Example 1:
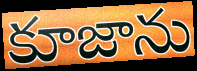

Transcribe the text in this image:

కూజాను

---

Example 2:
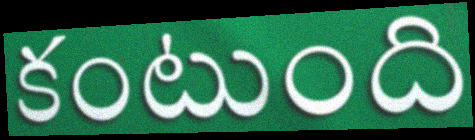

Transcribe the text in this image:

కంటుంది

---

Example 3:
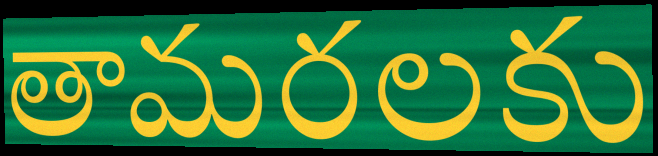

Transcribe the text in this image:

తామరలకు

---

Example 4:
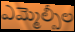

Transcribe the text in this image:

ఎమ్మెల్సీల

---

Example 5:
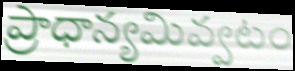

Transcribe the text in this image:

ప్రాధాన్యమివ్వటం